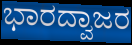
ಭಾರದ್ವಾಜರ